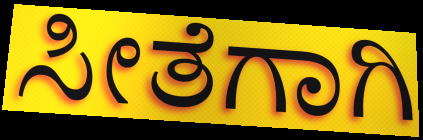
ಸೀತೆಗಾಗಿ